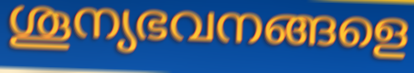
ശൂന്യഭവനങ്ങളെ